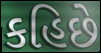
કહિછે